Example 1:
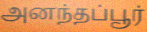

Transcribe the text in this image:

அனந்தப்பூர்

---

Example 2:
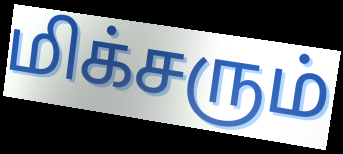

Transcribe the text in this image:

மிக்சரும்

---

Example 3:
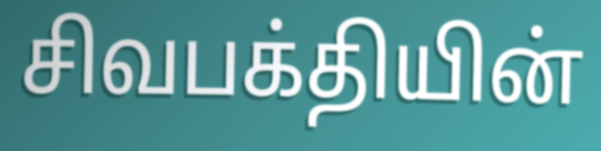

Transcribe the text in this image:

சிவபக்தியின்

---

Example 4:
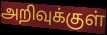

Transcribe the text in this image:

அறிவுக்குள்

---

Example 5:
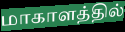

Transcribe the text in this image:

மாகாளத்தில்